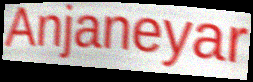
Anjaneyar